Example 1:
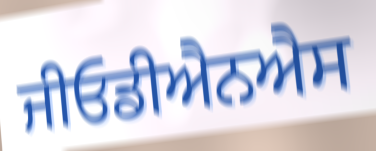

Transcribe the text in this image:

ਜੀਓਡੀਐਨਐਸ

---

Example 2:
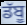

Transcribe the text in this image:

ਡੱਬੂ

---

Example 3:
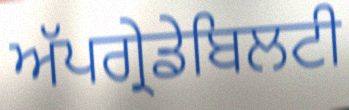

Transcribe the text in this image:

ਅੱਪਗ੍ਰੇਡੇਬਿਲਟੀ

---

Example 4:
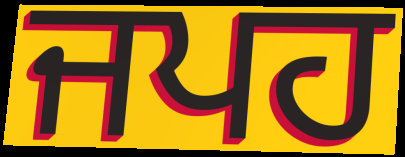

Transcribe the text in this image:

ਜਪਹ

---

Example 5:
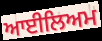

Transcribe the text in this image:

ਆਈਲਿਅਮ